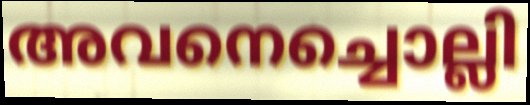
അവനെച്ചൊല്ലി